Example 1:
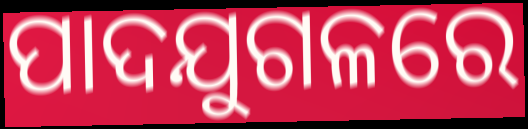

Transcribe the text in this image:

ପାଦଯୁଗଳରେ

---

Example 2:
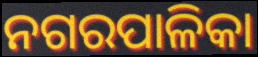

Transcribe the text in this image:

ନଗରପାଳିକା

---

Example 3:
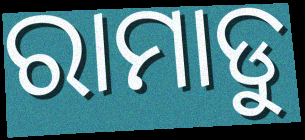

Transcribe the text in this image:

ରାମାଡୁ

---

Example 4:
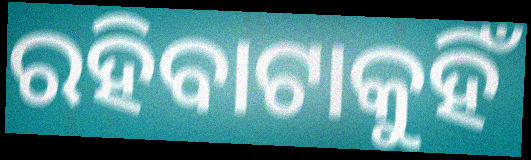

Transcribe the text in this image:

ରହିବାଟାକୁହିଁ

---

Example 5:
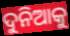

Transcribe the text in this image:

ଦୁନିଆକୁ